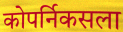
कोपर्निकसला